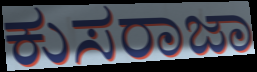
ಕುಸರಾಜಾ